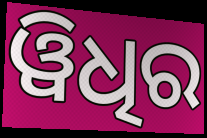
ୱିଧିର